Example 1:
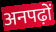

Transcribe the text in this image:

अनपढ़ों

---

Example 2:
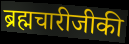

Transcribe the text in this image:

ब्रह्मचारीजीकी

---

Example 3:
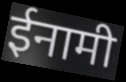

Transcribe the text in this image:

ईनामी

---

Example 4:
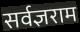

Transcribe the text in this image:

सर्वज्ञराम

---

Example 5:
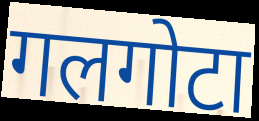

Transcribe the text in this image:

गलगोटा